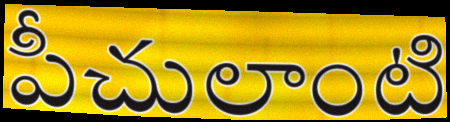
పీచులాంటి